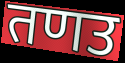
तणउ